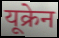
यूक्रेन